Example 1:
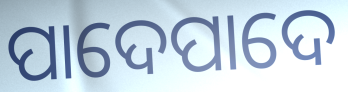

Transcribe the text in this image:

ପାଦେପାଦେ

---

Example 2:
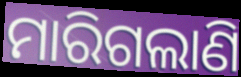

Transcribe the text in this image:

ମାରିଗଲାଣି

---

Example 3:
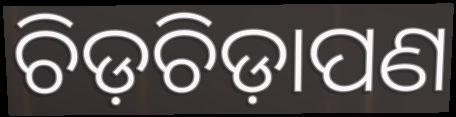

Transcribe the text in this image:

ଚିଡ଼ଚିଡ଼ାପଣ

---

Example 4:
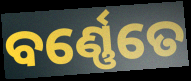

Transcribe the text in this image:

ବର୍ଣ୍ଣେତେ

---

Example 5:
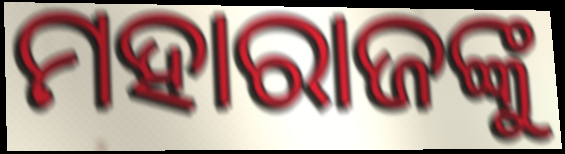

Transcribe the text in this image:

ମହାରାଜଙ୍କୁ